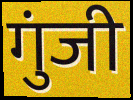
गुंजी